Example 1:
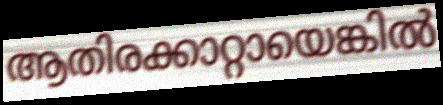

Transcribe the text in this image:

ആതിരക്കാറ്റായെങ്കിൽ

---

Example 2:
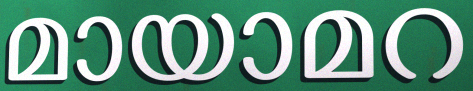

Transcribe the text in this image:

മായാമറ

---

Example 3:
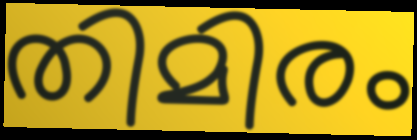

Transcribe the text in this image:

തിമിരം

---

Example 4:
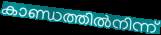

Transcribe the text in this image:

കാണ്ഡത്തിൽനിന്ന്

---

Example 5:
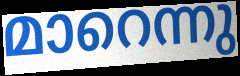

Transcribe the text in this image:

മാറെന്നു